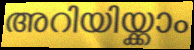
അറിയിയ്ക്കാം